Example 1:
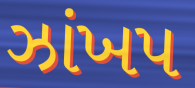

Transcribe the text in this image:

ઝાંખપ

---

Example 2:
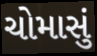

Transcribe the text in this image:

ચોમાસું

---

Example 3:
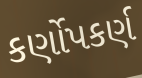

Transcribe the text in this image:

કર્ણોપકર્ણ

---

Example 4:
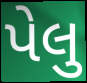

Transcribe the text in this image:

પેલુ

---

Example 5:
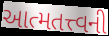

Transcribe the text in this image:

આત્મતત્ત્વની